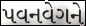
પવનવેગને